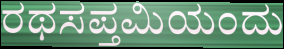
ರಥಸಪ್ತಮಿಯಂದು